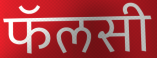
फॅलसी